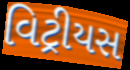
વિટ્રીયસ